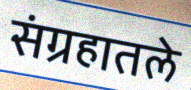
संग्रहातले